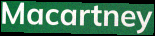
Macartney